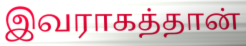
இவராகத்தான்